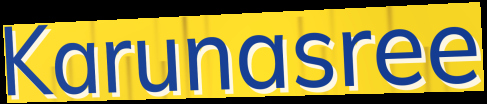
Karunasree